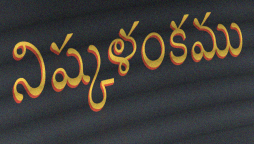
నిష్కళంకము